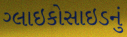
ગ્લાઇકોસાઇડનું